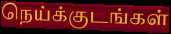
நெய்க்குடங்கள்